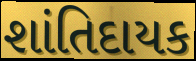
શાંતિદાયક